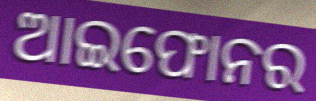
ଆଇଫୋନର